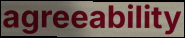
agreeability